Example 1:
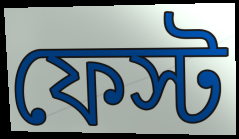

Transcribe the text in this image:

ফেস্ট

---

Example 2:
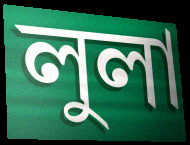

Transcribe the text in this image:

লুলা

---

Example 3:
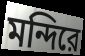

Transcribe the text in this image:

মন্দিরে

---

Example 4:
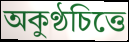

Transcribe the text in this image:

অকুণ্ঠচিত্তে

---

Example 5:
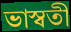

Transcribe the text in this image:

ভাস্বতী